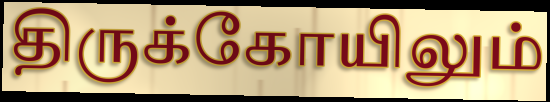
திருக்கோயிலும்